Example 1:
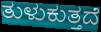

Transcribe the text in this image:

ತುಳುಕುತ್ತದೆ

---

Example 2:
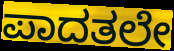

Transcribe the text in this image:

ಪಾದತಲೇ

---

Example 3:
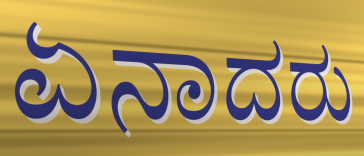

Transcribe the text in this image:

ಏನಾದರು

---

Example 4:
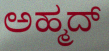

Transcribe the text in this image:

ಅಹ್ಮದ್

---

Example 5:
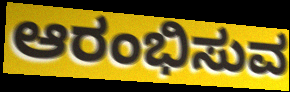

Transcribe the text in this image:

ಆರಂಭಿಸುವ